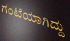
ಗಂಟೆಯಾಗಿದ್ದು